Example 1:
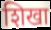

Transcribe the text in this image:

शिखा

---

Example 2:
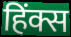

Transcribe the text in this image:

हिंक्स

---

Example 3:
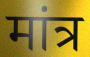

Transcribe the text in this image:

मांत्र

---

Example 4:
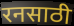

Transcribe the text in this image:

रनसाठी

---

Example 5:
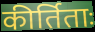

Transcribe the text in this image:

कीर्तिताः